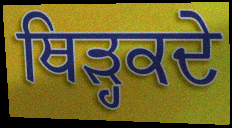
ਥਿੜ੍ਹਕਦੇ